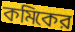
কমিকের